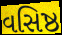
વસિષ્ઠ